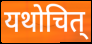
यथोचित्